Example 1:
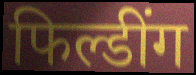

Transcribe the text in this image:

फिल्डींग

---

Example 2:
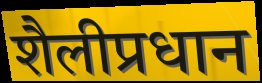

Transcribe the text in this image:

शैलीप्रधान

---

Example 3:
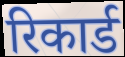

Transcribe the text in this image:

रिकार्ड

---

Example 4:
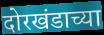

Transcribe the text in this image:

दोरखंडाच्या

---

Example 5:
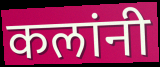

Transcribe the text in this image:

कलांनी